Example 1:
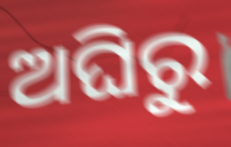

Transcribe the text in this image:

ଅଘିରୁ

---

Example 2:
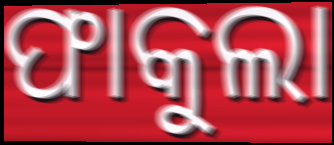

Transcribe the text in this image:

ଫାକୁଲା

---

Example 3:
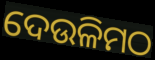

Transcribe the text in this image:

ଦେଉଳିମଠ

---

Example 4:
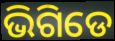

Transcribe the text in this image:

ଭିଗିଡେ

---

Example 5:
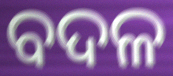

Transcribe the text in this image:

ବଦଳ